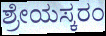
ಶ್ರೇಯಸ್ಕರಂ